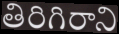
తిరిగిరాని